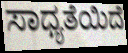
ಸಾಧ್ಯತೆಯಿದೆ